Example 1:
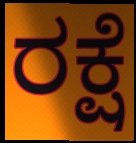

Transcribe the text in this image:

ರಕ್ಷೆ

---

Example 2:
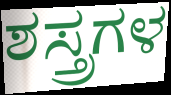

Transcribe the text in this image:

ಶಸ್ತ್ರಗಳ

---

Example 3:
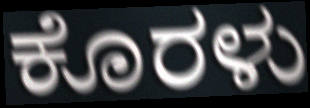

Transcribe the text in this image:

ಕೊರಳು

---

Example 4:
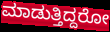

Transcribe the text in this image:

ಮಾಡುತ್ತಿದ್ದರೋ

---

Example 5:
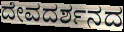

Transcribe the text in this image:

ದೇವದರ್ಶನದ